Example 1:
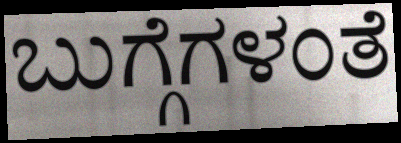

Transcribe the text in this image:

ಬುಗ್ಗೆಗಳಂತೆ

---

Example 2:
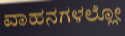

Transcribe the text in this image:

ವಾಹನಗಳಲ್ಲೋ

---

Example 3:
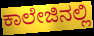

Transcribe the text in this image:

ಕಾಲೇಜಿನಲ್ಲಿ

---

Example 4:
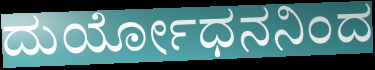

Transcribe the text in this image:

ದುರ್ಯೋಧನನಿಂದ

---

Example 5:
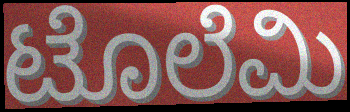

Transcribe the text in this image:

ಟೊಲೆಮಿ